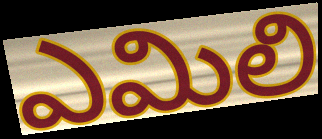
ఎమిలి